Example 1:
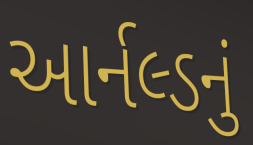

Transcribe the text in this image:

આર્નલ્ડનું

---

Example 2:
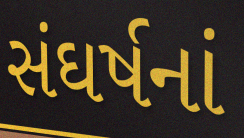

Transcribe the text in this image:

સંઘર્ષનાં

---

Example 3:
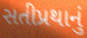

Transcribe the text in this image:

સતીપ્રથાનું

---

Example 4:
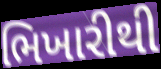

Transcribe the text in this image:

ભિખારીથી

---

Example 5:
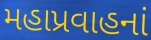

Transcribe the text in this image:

મહાપ્રવાહનાં